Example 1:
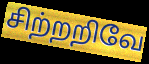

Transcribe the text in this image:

சிற்றறிவே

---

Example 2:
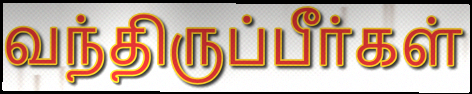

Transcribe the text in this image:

வந்திருப்பீர்கள்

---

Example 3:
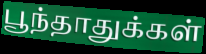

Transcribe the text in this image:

பூந்தாதுக்கள்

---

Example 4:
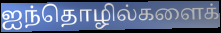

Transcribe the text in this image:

ஐந்தொழில்களைக்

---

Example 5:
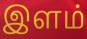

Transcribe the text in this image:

இளம்